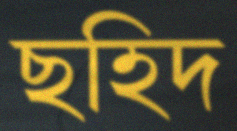
ছহিদ